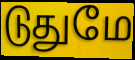
டுதுமே